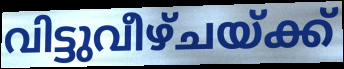
വിട്ടുവീഴ്ചയ്ക്ക്